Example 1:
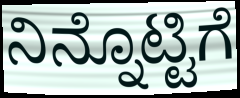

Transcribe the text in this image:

ನಿನ್ನೊಟ್ಟಿಗೆ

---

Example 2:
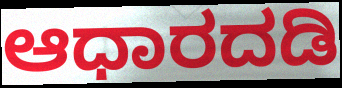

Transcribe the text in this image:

ಆಧಾರದಡಿ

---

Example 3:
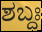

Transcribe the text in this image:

ಶಬ್ದಃ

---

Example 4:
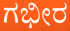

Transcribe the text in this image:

ಗಭೀರ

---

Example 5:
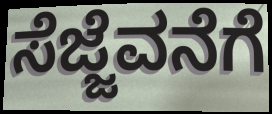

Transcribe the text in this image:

ಸೆಜ್ಜೆವನೆಗೆ